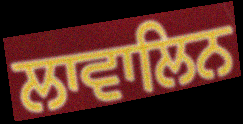
ਲਾਵਾਲਿਨ